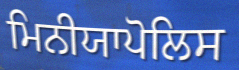
ਮਿਨੀਯਾਪੋਲਿਸ